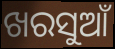
ଖରସୁଆଁ